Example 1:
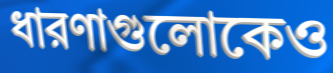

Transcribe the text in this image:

ধারণাগুলোকেও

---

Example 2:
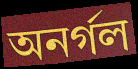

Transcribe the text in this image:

অনর্গল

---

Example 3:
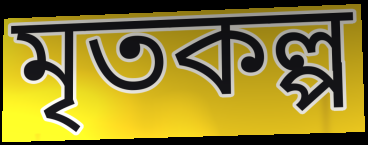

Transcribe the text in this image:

মৃতকল্প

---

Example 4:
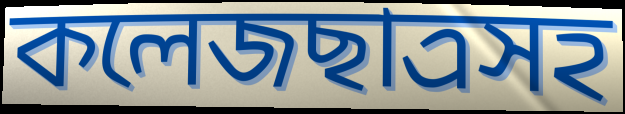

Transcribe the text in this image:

কলেজছাত্রসহ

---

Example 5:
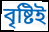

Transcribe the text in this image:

বৃষ্টিই